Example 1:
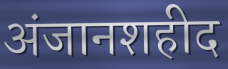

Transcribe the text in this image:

अंजानशहीद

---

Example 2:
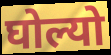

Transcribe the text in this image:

घोल्यो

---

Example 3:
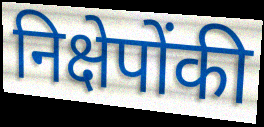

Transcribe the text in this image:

निक्षेपोंकी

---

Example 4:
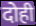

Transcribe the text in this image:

दोही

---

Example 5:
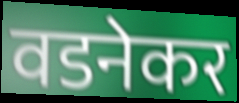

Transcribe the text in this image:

वडनेकर